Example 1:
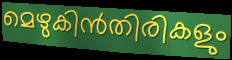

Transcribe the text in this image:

മെഴുകിൻതിരികളും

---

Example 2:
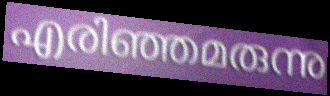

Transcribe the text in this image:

എരിഞ്ഞമരുന്നു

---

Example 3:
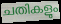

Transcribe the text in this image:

ചതികളും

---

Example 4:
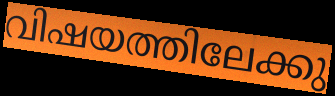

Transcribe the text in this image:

വിഷയത്തിലേക്കു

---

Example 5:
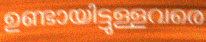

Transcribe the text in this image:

ഉണ്ടായിട്ടുള്ളവരെ